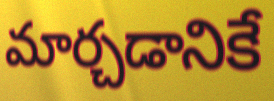
మార్చడానికే